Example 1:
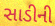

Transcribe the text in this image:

સાડીની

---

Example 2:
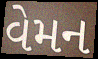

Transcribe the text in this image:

વેમન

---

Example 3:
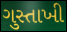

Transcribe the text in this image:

ગુસ્તાખી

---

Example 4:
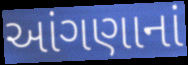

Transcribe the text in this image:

આંગણાનાં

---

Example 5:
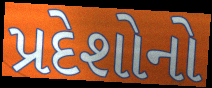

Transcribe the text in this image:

પ્રદેશોનો